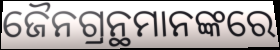
ଜୈନଗ୍ରନ୍ଥମାନଙ୍କରେ